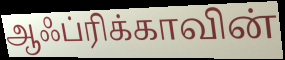
ஆஃப்ரிக்காவின்